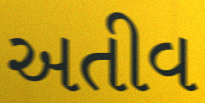
અતીવ